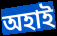
অহাই